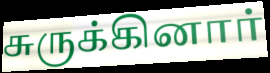
சுருக்கினார்